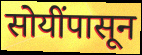
सोयींपासून